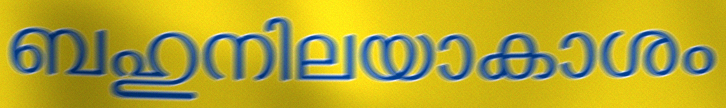
ബഹുനിലയാകാശം